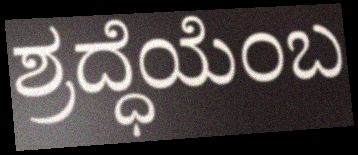
ಶ್ರದ್ಧೆಯೆಂಬ